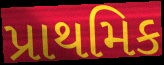
પ્રાથમિક